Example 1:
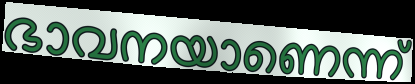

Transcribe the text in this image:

ഭാവനയാണെന്ന്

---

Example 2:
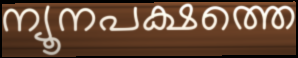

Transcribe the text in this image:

ന്യൂനപക്ഷത്തെ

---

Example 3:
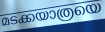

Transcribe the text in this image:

മടക്കയാത്രയെ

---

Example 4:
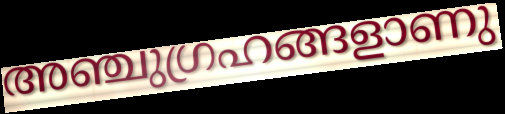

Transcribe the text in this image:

അഞ്ചുഗ്രഹങ്ങളാണു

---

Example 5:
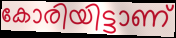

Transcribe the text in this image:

കോരിയിട്ടാണ്